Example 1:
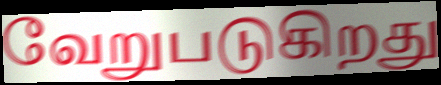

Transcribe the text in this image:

வேறுபடுகிறது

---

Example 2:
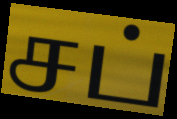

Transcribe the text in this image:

சப்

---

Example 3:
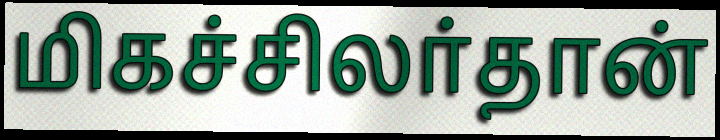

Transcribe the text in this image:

மிகச்சிலர்தான்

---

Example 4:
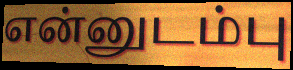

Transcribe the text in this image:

என்னுடம்பு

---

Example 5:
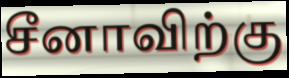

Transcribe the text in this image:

சீனாவிற்கு